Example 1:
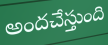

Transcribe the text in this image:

అందచేస్తుంది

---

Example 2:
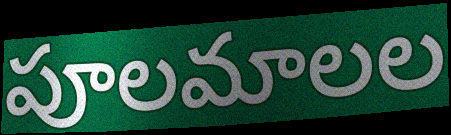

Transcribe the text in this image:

పూలమాలల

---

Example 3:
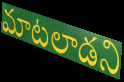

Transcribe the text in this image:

మాటలాడని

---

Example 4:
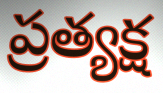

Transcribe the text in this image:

ప్రత్యక్ష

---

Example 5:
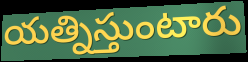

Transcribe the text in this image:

యత్నిస్తుంటారు